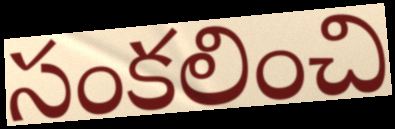
సంకలించి